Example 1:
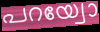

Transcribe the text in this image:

പറയ്വോ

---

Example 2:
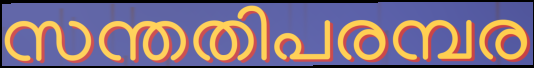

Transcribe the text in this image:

സന്തതിപരമ്പര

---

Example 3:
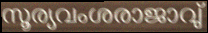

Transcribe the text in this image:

സൂര്യവംശരാജാവു്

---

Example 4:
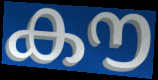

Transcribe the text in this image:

കൗ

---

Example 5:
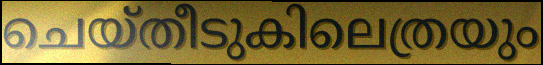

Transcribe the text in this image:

ചെയ്തീടുകിലെത്രയും